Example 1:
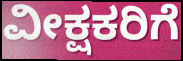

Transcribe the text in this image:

ವೀಕ್ಷಕರಿಗೆ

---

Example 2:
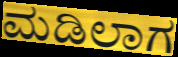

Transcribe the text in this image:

ಮಡಿಲಾಗ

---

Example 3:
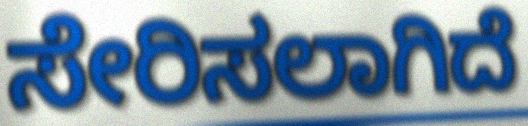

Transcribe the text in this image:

ಸೇರಿಸಲಾಗಿದೆ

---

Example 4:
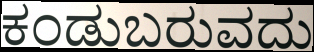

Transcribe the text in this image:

ಕಂಡುಬರುವದು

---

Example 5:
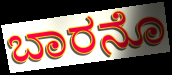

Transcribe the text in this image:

ಬಾರನೊ